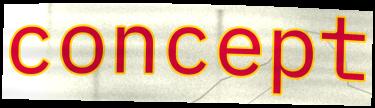
concept